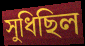
সুধিছিল